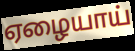
ஏழையாய்